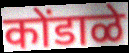
कोंडाळे